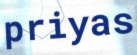
priyas